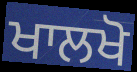
ਖਾਲਖੋ